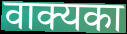
वाक्यका